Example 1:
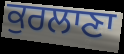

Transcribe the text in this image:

ਕੁਰਲਾਣਾ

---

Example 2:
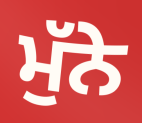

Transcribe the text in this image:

ਮੁੱਨੇ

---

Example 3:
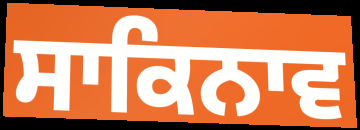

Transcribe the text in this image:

ਸਾਕਿਨਾਵ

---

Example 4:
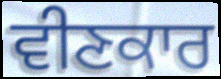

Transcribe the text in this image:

ਵੀਣਕਾਰ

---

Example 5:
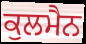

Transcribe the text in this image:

ਕੁਲਮੈਨ